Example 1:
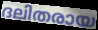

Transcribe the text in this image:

ദലിതരായ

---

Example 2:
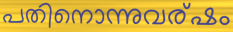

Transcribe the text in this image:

പതിനൊന്നുവര്ഷം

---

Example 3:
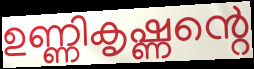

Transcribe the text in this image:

ഉണ്ണികൃഷ്ണന്റെ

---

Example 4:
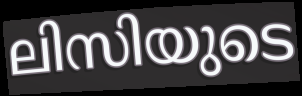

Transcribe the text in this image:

ലിസിയുടെ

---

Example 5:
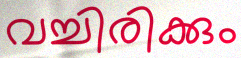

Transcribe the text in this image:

വച്ചിരിക്കും